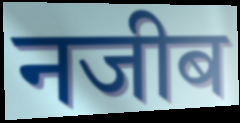
नजीब